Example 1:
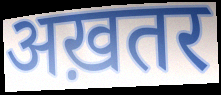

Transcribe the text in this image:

अख़तर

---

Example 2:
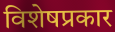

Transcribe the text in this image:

विशेषप्रकार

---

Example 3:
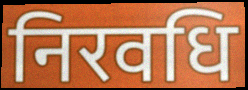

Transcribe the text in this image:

निरवधि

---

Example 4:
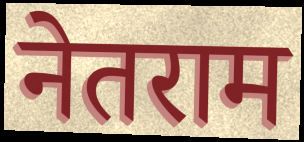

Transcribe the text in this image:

नेतराम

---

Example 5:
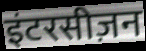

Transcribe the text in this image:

इंटरसीज़न